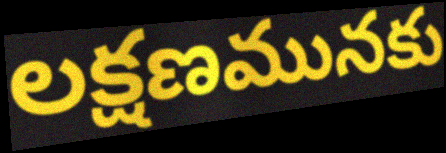
లక్షణమునకు